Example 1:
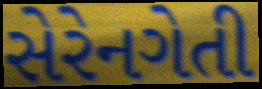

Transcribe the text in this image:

સેરેનગેતી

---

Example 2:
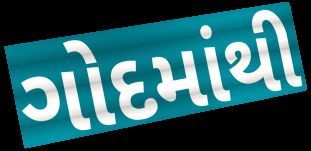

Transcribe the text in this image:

ગોદમાંથી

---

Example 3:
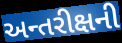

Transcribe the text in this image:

અન્તરીક્ષની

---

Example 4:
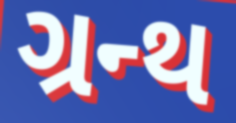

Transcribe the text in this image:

ગ્રન્થ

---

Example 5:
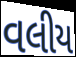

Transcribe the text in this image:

વલીય